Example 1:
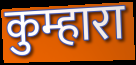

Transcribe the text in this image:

कुम्हारा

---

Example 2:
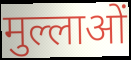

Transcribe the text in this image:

मुल्लाओं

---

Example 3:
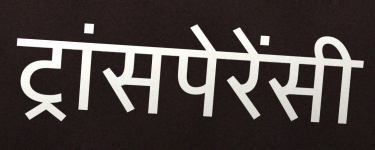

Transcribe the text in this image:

ट्रांसपेरेंसी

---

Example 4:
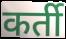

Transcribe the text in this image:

कर्ती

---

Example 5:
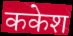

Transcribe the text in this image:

ककेश